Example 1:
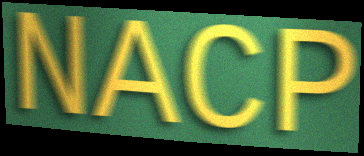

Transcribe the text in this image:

NACP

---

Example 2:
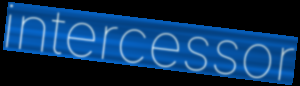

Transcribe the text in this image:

intercessor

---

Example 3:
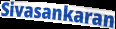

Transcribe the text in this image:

Sivasankaran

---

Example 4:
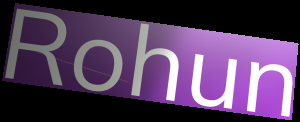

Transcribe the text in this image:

Rohun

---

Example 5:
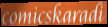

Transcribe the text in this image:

comicskaradi